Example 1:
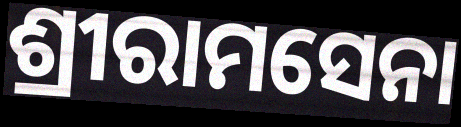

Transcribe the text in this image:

ଶ୍ରୀରାମସେନା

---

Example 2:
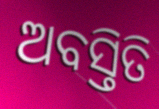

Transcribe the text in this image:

ଅବସ୍ତିତି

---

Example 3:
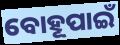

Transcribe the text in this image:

ବୋହୂପାଇଁ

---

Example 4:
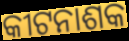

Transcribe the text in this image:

କୀଟନାଶକ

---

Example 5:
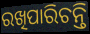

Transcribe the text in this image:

ରଖିପାରିଚନ୍ତି